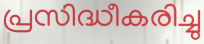
പ്രസിദ്ധീകരിച്ചു